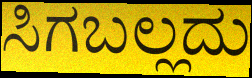
ಸಿಗಬಲ್ಲದು